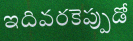
ఇదివరకెప్పుడో